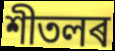
শীতলৰ